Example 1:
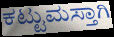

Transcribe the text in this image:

ಕಟ್ಟುಮಸ್ತಾಗಿ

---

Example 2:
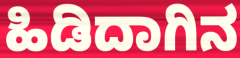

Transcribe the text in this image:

ಹಿಡಿದಾಗಿನ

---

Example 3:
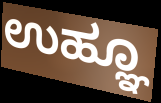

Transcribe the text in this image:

ಉಹ್ಞೂ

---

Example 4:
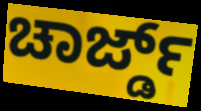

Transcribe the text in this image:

ಚಾರ್ಜ್ಡ್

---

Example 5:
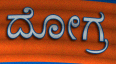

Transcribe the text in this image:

ದೋಗ್ರ